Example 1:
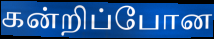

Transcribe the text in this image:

கன்றிப்போன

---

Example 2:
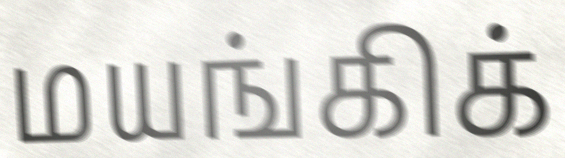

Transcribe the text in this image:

மயங்கிக்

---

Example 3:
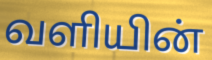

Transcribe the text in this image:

வளியின்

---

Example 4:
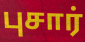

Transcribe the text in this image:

புசார்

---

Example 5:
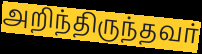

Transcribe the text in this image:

அறிந்திருந்தவர்